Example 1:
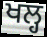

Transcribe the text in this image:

ਖਲ੍ਹ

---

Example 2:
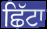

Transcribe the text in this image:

ਛਿੱਟਾ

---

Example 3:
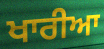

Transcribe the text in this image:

ਖਾਰੀਆ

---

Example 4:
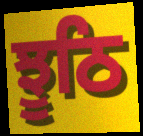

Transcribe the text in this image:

ਝੂਠਿ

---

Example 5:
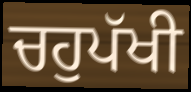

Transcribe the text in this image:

ਚਹੁਪੱਖੀ